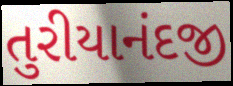
તુરીયાનંદજી